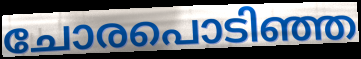
ചോരപൊടിഞ്ഞ